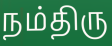
நம்திரு